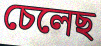
চেলেছ